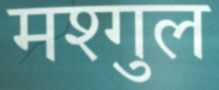
मश्गुल